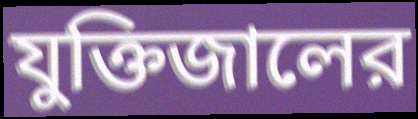
যুক্তিজালের